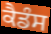
ਕੈਡੰਸ